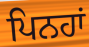
ਪਿਨਹਾਂ